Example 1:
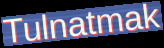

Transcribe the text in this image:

Tulnatmak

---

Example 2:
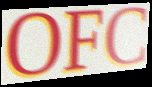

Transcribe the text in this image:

OFC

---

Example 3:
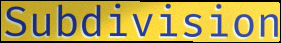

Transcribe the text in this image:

Subdivision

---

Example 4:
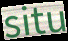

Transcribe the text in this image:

situ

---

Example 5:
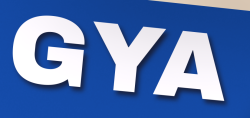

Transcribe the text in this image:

GYA